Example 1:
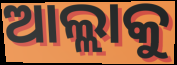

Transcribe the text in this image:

ଆଲ୍ଲାକୁ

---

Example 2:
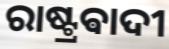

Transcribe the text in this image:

ରାଷ୍ଟ୍ରଵାଦୀ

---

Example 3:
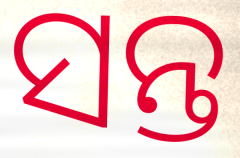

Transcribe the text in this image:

ସନ୍ତ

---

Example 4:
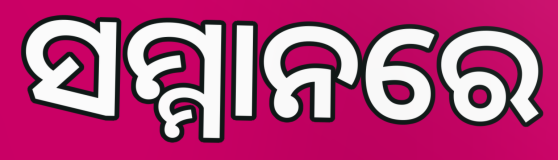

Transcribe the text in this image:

ସମ୍ମାନରେ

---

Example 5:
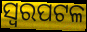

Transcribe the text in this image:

ସ୍ୱରପଟଳ